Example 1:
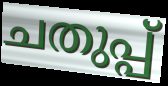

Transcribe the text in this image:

ചതുപ്പ്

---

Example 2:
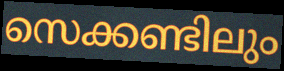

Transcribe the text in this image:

സെക്കണ്ടിലും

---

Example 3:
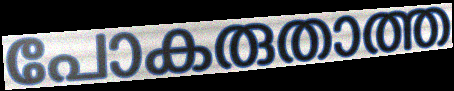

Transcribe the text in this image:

പോകരുതാത്ത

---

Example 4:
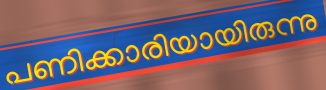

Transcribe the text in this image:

പണിക്കാരിയായിരുന്നു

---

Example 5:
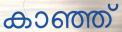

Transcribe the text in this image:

കാഞ്ഞ്